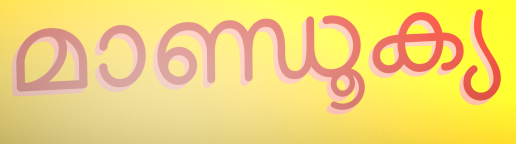
മാണ്ഡൂക്യ